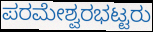
ಪರಮೇಶ್ವರಭಟ್ಟರು